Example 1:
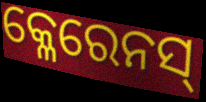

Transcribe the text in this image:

କ୍ଳେରେନସ୍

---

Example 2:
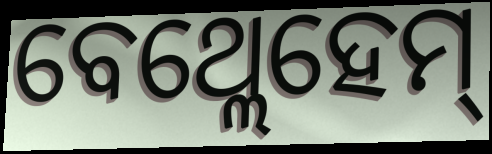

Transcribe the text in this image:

ବେଥ୍ଲେହେମ୍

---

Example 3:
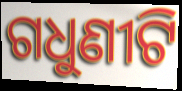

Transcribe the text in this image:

ଗଧୁଣୀଟି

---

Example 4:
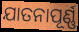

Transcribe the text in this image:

ଯାତନାପୂର୍ଣ୍ଣ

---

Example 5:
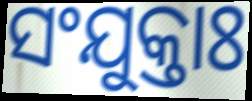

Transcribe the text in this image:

ସଂଯୁକ୍ତାଃ